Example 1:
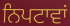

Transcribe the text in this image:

ਨਿਪਟਾਵਾਂ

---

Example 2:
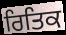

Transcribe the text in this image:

ਰਿਤਿਕ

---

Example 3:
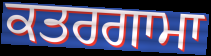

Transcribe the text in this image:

ਕਤਰਗਾਮਾ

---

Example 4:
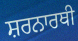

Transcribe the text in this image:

ਸ਼ਰਨਾਰਥੀ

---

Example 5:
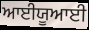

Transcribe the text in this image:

ਆਈਯੂਆਈ